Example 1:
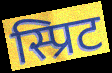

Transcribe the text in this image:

स्प्रिट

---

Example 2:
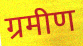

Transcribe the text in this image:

ग्रमीण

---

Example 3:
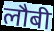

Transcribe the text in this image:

लौबी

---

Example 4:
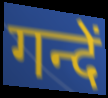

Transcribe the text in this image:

गन्दें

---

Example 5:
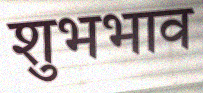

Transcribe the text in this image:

शुभभाव